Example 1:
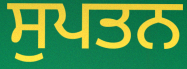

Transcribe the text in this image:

ਸੁਪਤਨ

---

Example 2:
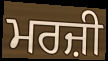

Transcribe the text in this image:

ਮਰਜ਼ੀ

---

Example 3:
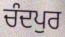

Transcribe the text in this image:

ਚੰਦਪੁਰ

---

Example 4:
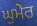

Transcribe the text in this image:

ਘੁਮੇਰ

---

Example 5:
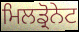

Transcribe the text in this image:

ਮਿਲਡ੍ਰੋਨੇਟ